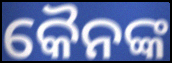
କୈନଙ୍କ